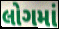
લોગમાં